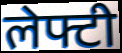
लेफ्टी